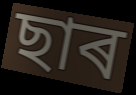
ছাৰ